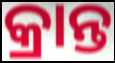
କ୍ରାନ୍ତ